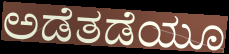
ಅಡೆತಡೆಯೂ